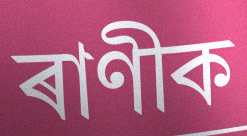
ৰাণীক